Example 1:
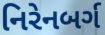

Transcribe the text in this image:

નિરેનબર્ગ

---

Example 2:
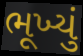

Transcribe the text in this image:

ભૂખ્યું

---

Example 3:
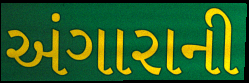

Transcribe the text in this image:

અંગારાની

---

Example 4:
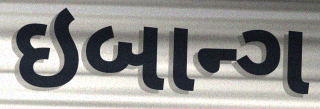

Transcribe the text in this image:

ઇબાન્ગ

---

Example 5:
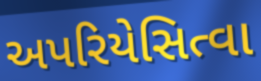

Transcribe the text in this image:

અપરિયેસિત્વા